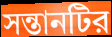
সন্তানটির